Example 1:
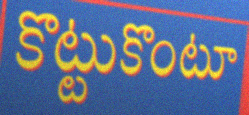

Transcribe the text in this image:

కొట్టుకొంటూ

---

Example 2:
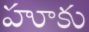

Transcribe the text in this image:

హూకు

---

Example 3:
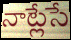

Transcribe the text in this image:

నాట్లేసే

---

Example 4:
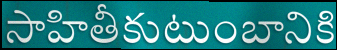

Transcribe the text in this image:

సాహితీకుటుంబానికి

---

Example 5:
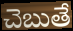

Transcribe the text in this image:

చెబుతే